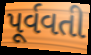
પૂર્વવતી